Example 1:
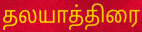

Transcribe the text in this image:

தலயாத்திரை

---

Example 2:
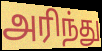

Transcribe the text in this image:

அரிந்து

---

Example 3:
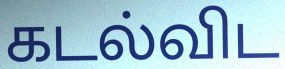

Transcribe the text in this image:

கடல்விட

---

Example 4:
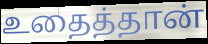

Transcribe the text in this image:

உதைத்தான்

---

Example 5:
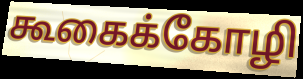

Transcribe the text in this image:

கூகைக்கோழி